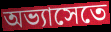
অভ্যাসেতে